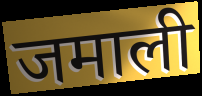
जमाली